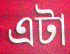
এটা